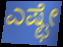
ಎಷ್ಟೇ